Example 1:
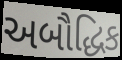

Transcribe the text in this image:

અબૌદ્ધિક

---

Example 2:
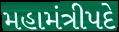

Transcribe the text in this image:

મહામંત્રીપદે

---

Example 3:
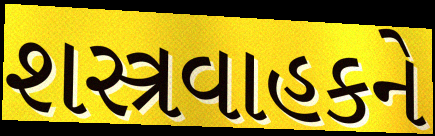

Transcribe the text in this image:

શસ્ત્રવાહકને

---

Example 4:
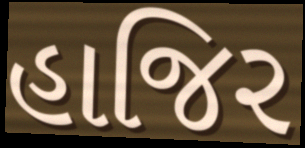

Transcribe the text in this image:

હાજિર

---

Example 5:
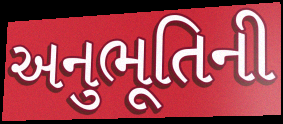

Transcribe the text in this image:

અનુભૂતિની